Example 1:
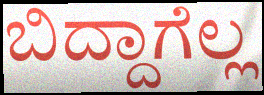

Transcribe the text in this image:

ಬಿದ್ದಾಗೆಲ್ಲ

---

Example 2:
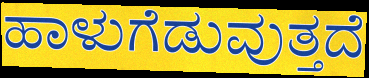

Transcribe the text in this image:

ಹಾಳುಗೆಡುವುತ್ತದೆ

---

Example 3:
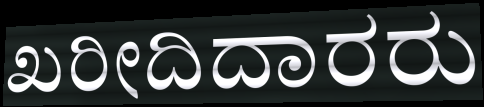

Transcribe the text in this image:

ಖರೀದಿದಾರರು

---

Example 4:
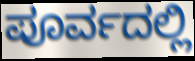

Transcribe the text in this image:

ಪೂರ್ವದಲ್ಲಿ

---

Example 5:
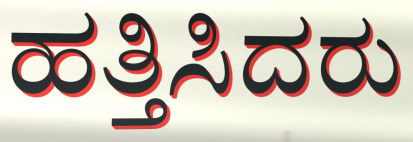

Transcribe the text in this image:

ಹತ್ತಿಸಿದರು